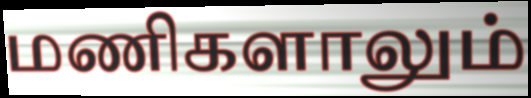
மணிகளாலும்